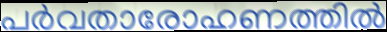
പർവതാരോഹണത്തിൽ